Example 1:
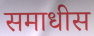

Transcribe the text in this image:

समाधीस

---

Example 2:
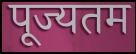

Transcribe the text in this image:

पूज्यतम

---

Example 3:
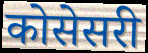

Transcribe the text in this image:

कोसेसरी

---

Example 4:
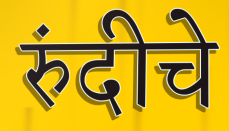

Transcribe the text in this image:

रुंदीचे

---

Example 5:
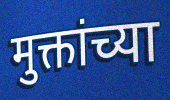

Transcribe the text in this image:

मुक्तांच्या